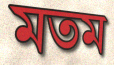
মতম